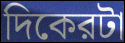
দিকেরটা